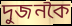
দুজনকৈ